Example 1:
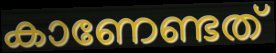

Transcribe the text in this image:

കാണേണ്ടത്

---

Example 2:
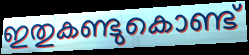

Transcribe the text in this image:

ഇതുകണ്ടുകൊണ്ട്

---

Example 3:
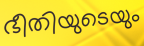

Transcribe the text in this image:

ഭീതിയുടെയും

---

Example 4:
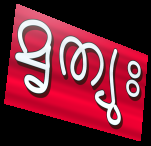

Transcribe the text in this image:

മൃത്യുഃ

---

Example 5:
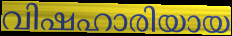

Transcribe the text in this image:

വിഷഹാരിയായ